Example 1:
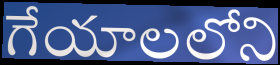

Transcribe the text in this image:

గేయాలలోని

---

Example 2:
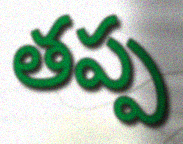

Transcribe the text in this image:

తప్ప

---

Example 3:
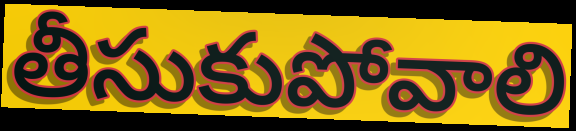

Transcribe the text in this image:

తీసుకుపోవాలి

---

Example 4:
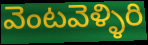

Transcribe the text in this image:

వెంటవెళ్ళిరి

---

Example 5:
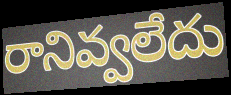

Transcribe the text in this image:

రానివ్వలేదు